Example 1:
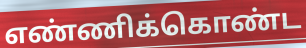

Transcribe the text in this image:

எண்ணிக்கொண்ட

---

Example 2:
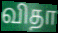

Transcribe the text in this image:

விதா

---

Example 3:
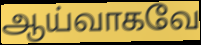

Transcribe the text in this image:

ஆய்வாகவே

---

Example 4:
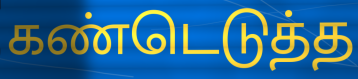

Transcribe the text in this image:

கண்டெடுத்த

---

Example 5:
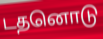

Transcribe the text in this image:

டதனொடு